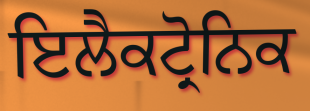
ਇਲੈਕਟ੍ਰੋਨਿਕ